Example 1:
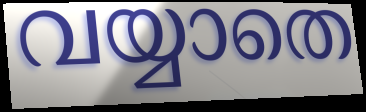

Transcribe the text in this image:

വയ്യാതെ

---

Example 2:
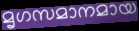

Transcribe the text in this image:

മൃഗസമാനമായ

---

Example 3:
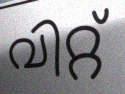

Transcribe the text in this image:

വിറ്റ്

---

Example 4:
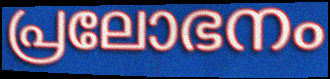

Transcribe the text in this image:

പ്രലോഭനം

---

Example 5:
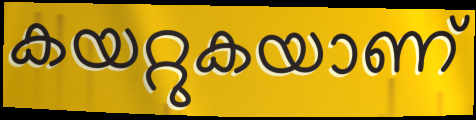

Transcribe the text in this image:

കയറ്റുകയാണ്